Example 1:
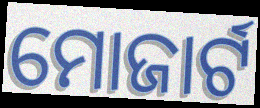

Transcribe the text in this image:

ମୋଜାର୍ଟ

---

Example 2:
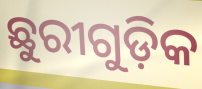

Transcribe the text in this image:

ଛୁରୀଗୁଡ଼ିକ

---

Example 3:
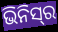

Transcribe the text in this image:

ଭିନିସ୍‌ର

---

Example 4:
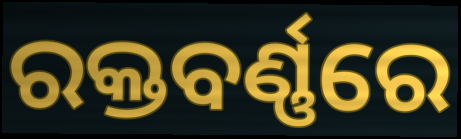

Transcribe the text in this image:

ରକ୍ତବର୍ଣ୍ଣରେ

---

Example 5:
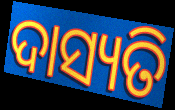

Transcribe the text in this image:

ଦାସ୍ୟତି